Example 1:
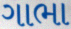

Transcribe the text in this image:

ગાભા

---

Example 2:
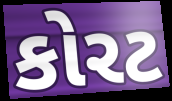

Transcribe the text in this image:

કોરટ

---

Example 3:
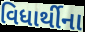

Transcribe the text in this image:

વિધાર્થીના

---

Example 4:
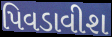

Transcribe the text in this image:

પિવડાવીશ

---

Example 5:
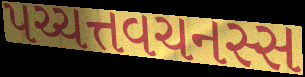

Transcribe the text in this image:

પચ્ચત્તવચનસ્સ